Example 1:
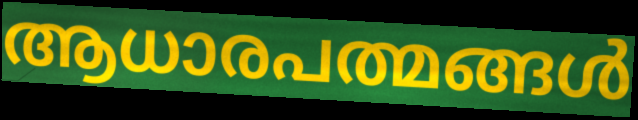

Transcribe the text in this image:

ആധാരപത്മങ്ങൾ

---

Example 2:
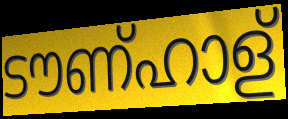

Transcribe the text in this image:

ടൗണ്ഹാള്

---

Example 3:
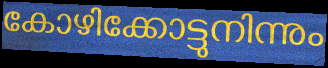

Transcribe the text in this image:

കോഴിക്കോട്ടുനിന്നും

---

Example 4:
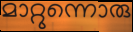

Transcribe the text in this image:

മാറ്റുന്നൊരു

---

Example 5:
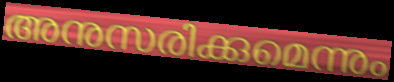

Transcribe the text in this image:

അനുസരിക്കുമെന്നും